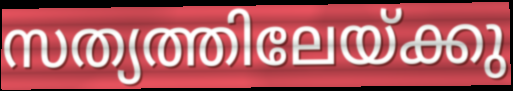
സത്യത്തിലേയ്ക്കു